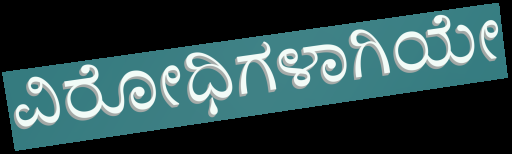
ವಿರೋಧಿಗಳಾಗಿಯೇ